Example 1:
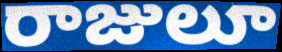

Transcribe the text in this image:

రాజులూ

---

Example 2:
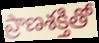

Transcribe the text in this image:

ప్రాణశక్తితో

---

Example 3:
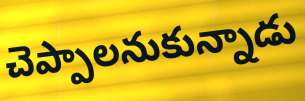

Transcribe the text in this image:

చెప్పాలనుకున్నాడు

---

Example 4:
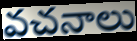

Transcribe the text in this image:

వచనాలు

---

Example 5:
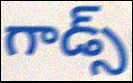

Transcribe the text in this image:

గాడ్స్